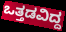
ಒತ್ತಡವಿದ್ದ